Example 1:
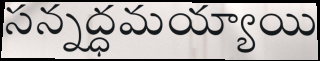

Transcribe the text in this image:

సన్నద్ధమయ్యాయి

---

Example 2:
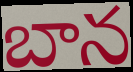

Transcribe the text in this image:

బాన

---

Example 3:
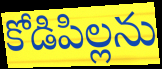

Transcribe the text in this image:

కోడిపిల్లను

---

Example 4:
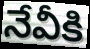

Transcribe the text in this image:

నేవీకి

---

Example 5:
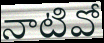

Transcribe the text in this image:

నాటివో